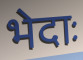
भेदाः